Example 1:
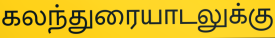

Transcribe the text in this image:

கலந்துரையாடலுக்கு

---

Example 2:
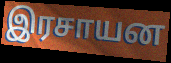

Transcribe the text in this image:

இரசாயன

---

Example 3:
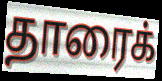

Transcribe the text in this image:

தாரைக்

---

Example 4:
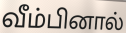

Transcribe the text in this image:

வீம்பினால்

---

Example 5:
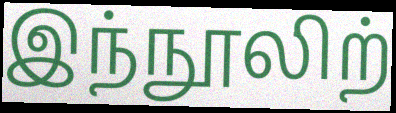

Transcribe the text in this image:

இந்நூலிற்